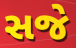
સજે